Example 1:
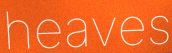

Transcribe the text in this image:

heaves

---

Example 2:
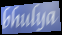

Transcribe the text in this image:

bhulya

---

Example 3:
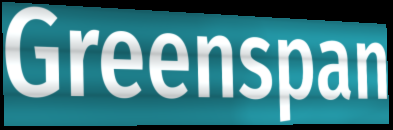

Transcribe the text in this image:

Greenspan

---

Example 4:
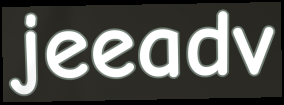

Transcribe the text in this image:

jeeadv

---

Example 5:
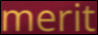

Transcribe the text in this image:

merit